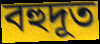
বহুদূত